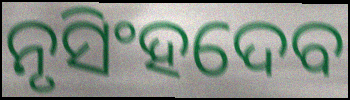
ନୃସିଂହଦେବ